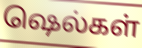
ஷெல்கள்